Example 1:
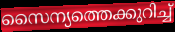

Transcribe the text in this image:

സൈന്യത്തെക്കുറിച്ച്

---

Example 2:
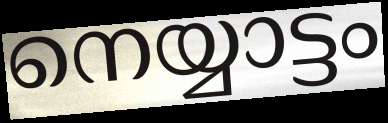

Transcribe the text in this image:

നെയ്യാട്ടം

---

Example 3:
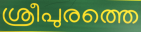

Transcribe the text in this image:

ശ്രീപുരത്തെ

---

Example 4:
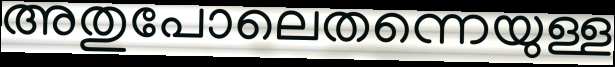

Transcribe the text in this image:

അതുപോലെതന്നെയുള്ള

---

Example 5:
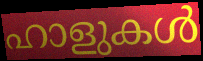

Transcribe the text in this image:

ഹാളുകൾ